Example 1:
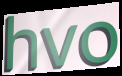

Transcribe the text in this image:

hvo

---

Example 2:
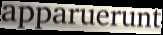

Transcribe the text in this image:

apparuerunt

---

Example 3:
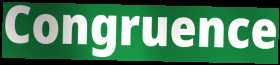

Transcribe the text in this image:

Congruence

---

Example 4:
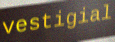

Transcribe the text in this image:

vestigial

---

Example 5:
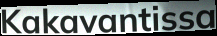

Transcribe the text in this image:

Kakavantissa